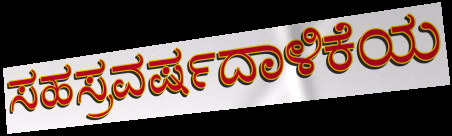
ಸಹಸ್ರವರ್ಷದಾಳಿಕೆಯ